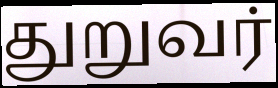
துறுவர்